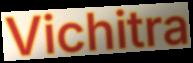
Vichitra